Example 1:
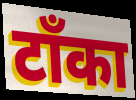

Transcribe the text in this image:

टाँका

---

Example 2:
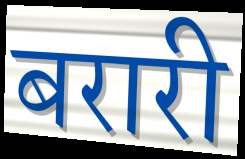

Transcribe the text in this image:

बरारी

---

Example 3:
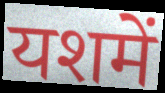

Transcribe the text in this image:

यशमें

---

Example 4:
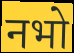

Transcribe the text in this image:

नभो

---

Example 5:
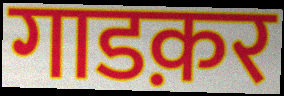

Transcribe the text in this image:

गाडक़र